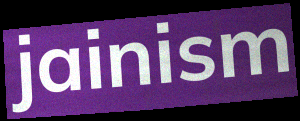
jainism